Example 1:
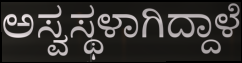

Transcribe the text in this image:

ಅಸ್ವಸ್ಥಳಾಗಿದ್ದಾಳೆ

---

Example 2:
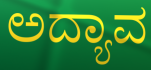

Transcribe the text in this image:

ಅದ್ಯಾವ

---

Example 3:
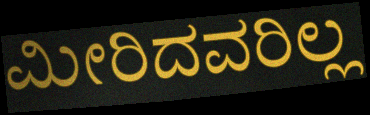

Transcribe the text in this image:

ಮೀರಿದವರಿಲ್ಲ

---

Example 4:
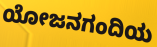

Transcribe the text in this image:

ಯೋಜನಗಂದಿಯ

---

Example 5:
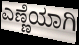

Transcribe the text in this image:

ಎಣ್ಣೆಯಾಗಿ